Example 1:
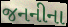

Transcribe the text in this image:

જનનીના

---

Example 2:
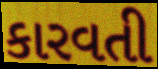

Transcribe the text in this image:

કારવતી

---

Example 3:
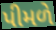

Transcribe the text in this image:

પીમળે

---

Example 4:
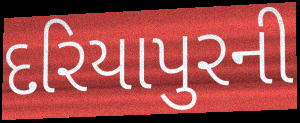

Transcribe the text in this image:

દરિયાપુરની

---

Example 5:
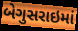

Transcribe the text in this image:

બેગુસરાઇમાં